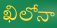
ఖిలోనా